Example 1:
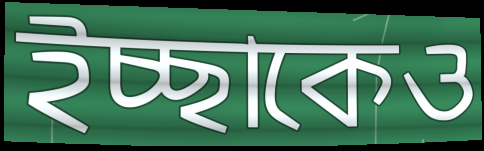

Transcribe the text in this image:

ইচ্ছাকেও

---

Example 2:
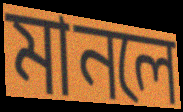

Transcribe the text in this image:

মানলে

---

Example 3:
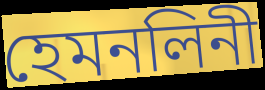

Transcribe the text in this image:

হেমনলিনী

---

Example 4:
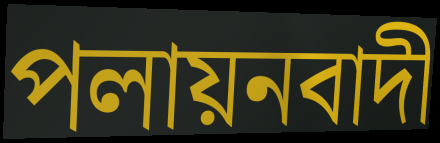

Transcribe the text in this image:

পলায়নবাদী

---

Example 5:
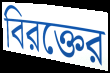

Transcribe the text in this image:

বিরক্তের